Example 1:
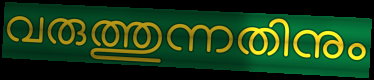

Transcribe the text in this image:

വരുത്തുന്നതിനും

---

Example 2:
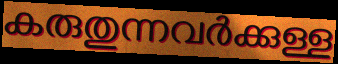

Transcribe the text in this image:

കരുതുന്നവർക്കുള്ള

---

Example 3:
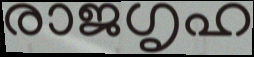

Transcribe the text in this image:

രാജഗൃഹ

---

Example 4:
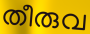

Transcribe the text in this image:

തീരുവ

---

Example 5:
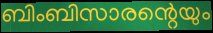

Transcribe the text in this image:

ബിംബിസാരന്റെയും